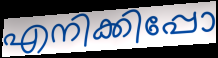
എനിക്കിപ്പോ